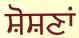
ਸ਼ੋਸ਼ਣਾਂ